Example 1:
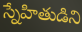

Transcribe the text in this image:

స్నేహితుడిని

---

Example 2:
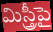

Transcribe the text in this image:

మిస్త్రీపై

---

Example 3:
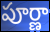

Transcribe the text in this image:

పూర్ణా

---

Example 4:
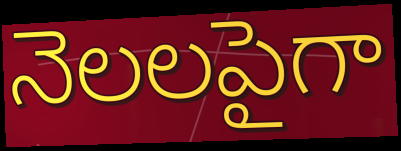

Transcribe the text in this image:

నెలలపైగా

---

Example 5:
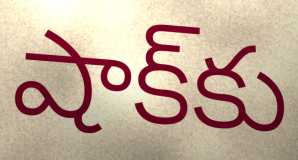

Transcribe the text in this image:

షాక్‌కు